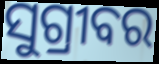
ସୁଗ୍ରୀବର